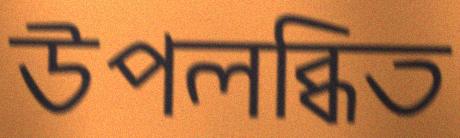
উপলব্ধিত